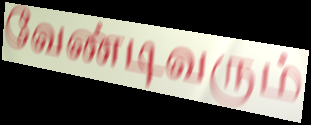
வேண்டிவரும்